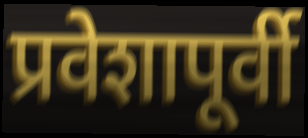
प्रवेशापूर्वी